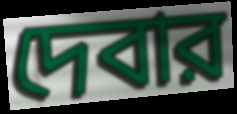
দেবার